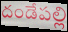
దండేపల్లి